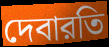
দেবারতি